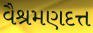
વૈશ્રમણદત્ત